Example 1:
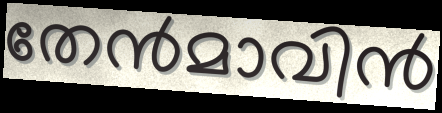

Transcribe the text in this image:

തേൻമാവിൻ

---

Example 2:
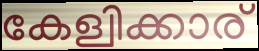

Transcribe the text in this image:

കേള്വിക്കാര്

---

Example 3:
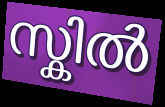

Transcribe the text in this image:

സ്കിൽ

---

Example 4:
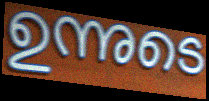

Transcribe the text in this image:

ഉന്നുടെ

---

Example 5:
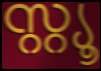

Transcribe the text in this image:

സ്റ്റ്യൂ